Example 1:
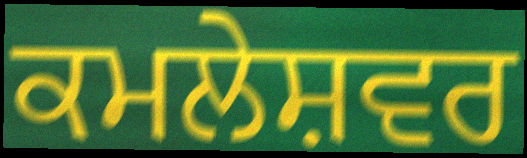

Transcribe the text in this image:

ਕਮਲੇਸ਼ਵਰ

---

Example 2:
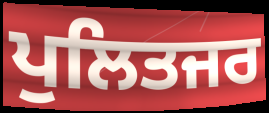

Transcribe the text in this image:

ਪੁਲਿਤਜਰ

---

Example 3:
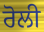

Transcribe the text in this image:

ਰੋਲੀ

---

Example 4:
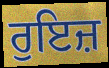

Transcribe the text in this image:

ਰੁਇਜ਼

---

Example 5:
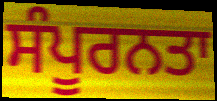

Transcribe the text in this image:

ਸੰਪੂਰਨਤਾ